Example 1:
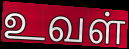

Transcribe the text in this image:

உவள்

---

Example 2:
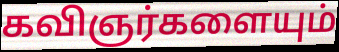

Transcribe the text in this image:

கவிஞர்களையும்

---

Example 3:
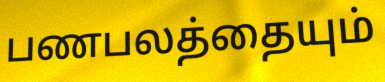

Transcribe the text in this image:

பணபலத்தையும்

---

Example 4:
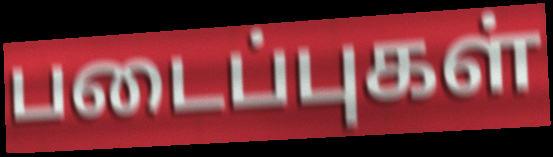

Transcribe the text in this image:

படைப்புகள்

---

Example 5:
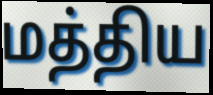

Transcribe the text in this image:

மத்திய